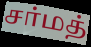
சர்மத்